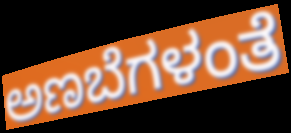
ಅಣಬೆಗಳಂತೆ